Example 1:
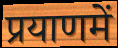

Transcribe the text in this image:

प्रयाणमें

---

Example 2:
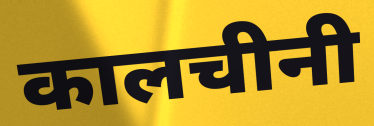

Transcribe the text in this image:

कालचीनी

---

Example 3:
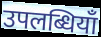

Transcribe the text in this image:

उपलब्धियाँ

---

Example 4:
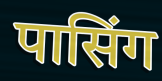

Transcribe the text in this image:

पासिंग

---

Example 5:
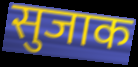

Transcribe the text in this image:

सुजाक